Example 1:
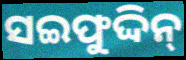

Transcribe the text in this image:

ସଇଫୁଦ୍ଦିନ୍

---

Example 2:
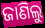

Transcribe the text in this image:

ଜାଣିଲୁ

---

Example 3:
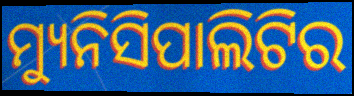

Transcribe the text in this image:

ମ୍ୟୁନିସିପାଲିଟିର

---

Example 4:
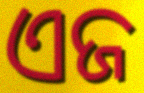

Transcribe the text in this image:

ଏଜ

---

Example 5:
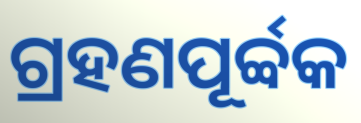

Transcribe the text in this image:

ଗ୍ରହଣପୂର୍ବ୍ବକ